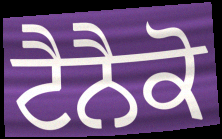
ਟੈਨੈਕੋ